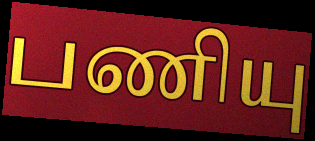
பணியு